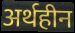
अर्थहीन